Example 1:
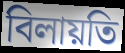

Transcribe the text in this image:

বিলায়তি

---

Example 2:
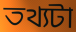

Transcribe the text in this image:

তথ্যটা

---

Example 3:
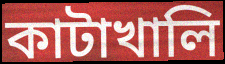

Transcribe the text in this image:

কাটাখালি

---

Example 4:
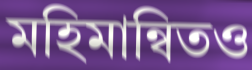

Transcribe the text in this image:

মহিমান্বিতও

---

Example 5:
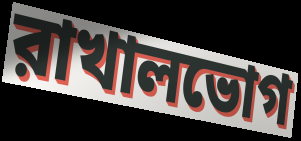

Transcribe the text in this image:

রাখালভোগ